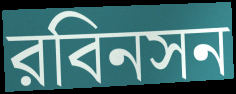
রবিনসন